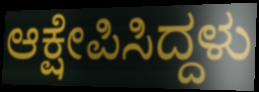
ಆಕ್ಷೇಪಿಸಿದ್ದಳು